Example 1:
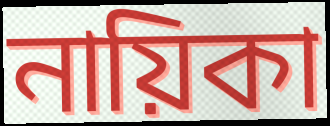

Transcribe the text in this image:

নায়িকা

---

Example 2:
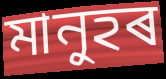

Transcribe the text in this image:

মানুহৰ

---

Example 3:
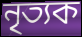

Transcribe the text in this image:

নৃত্যক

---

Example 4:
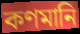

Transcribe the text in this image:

কণমানি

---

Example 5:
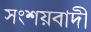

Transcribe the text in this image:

সংশয়বাদী